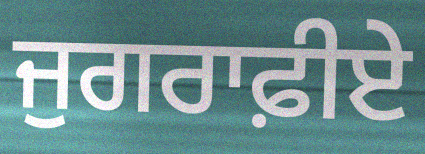
ਜੁਗਰਾਫ਼ੀਏ